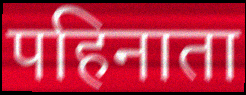
पहिनाता